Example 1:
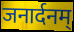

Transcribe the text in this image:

जनार्दनम्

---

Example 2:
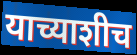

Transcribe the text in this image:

याच्याशीच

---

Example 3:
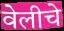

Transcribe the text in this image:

वेलीचे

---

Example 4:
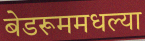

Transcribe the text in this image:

बेडरूममधल्या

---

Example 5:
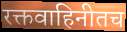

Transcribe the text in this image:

रक्तवाहिनीतच